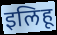
इलिहू